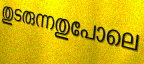
തുടരുന്നതുപോലെ